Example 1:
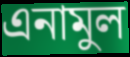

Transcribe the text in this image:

এনামুল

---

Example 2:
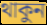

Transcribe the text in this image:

থাকুন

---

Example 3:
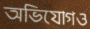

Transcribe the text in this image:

অভিযোগও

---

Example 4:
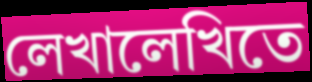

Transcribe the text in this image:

লেখালেখিতে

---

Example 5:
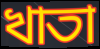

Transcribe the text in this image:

খাতা